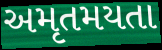
અમૃતમયતા